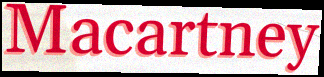
Macartney